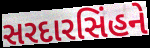
સરદારસિંહને